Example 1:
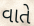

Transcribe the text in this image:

વાતે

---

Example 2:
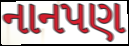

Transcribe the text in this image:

નાનપણ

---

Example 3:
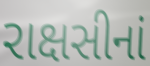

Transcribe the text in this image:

રાક્ષસીનાં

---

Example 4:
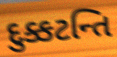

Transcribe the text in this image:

દુક્કટન્તિ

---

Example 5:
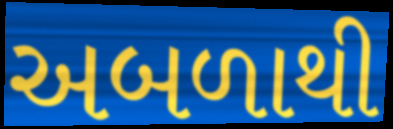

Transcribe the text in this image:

અબળાથી